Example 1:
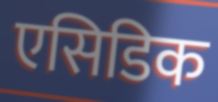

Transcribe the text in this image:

एसिडिक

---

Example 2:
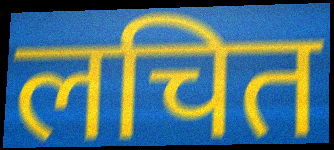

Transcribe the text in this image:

लचित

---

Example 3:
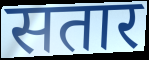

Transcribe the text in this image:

सतार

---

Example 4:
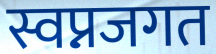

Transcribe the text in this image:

स्वप्नजगत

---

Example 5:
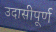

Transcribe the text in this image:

उदासीपूर्ण